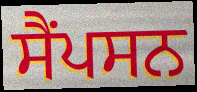
ਸੈਂਪਸਨ